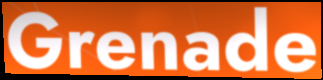
Grenade